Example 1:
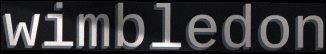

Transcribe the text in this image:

wimbledon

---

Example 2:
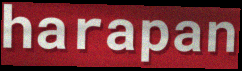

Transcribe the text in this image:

harapan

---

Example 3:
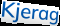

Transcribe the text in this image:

Kjerag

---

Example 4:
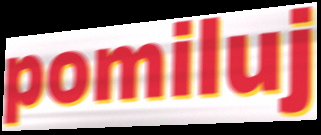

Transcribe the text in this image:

pomiluj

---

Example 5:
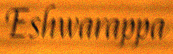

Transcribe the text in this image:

Eshwarappa